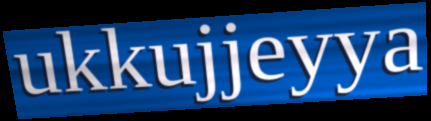
ukkujjeyya